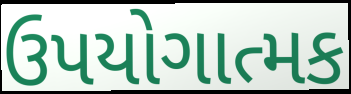
ઉપયોગાત્મક